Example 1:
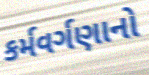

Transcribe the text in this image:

કર્મવર્ગણાનો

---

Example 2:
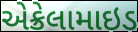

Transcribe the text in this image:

એક્રેલામાઇડ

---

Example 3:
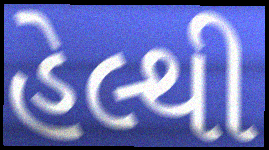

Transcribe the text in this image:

હેલ્થી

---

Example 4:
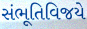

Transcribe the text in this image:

સંભૂતિવિજયે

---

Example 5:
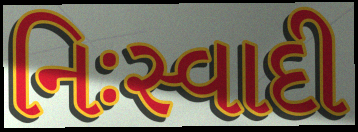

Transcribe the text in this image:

નિઃસ્વાદી